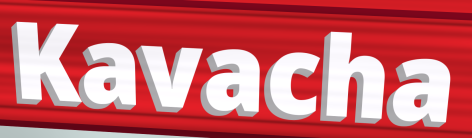
Kavacha